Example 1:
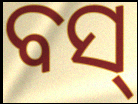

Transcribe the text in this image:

ବସ୍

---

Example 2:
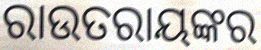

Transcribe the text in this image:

ରାଉତରାୟଙ୍କର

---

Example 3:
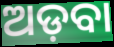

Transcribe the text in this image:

ଅଡ଼ବା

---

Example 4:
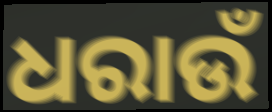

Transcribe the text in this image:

ଧରାଉଁ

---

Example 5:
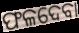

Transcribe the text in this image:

ଫଳଦେବା